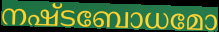
നഷ്ടബോധമോ